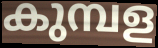
കുമ്പള